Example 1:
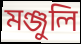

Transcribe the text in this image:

মঞ্জুলি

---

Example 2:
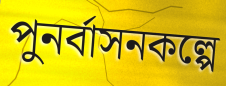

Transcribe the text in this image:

পুনর্বাসনকল্পে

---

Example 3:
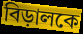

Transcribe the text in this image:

বিড়ালকে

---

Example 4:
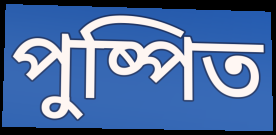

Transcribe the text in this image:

পুষ্পিত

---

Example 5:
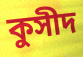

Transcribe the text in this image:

কুসীদ